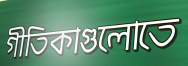
গীতিকাগুলোতে